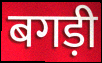
बगड़ी